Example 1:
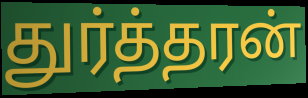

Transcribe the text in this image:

துர்த்தரன்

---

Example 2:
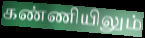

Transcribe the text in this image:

கண்ணியிலும்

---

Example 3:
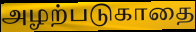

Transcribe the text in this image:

அழற்படுகாதை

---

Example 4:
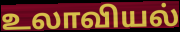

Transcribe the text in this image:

உலாவியல்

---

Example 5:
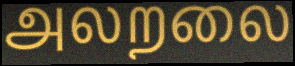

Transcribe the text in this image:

அலறலை